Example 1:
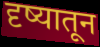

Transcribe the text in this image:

दृष्यातून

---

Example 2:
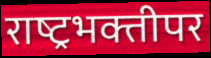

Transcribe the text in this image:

राष्ट्रभक्तीपर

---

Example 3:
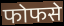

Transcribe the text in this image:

फोफसे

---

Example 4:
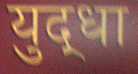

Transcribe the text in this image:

युद्धा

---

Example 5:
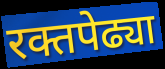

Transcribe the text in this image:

रक्तपेढ्या